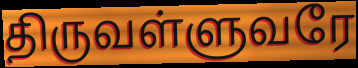
திருவள்ளுவரே